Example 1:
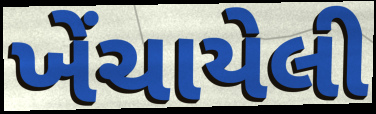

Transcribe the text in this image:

ખેંચાયેલી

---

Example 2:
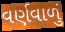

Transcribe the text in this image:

વર્ણવાળું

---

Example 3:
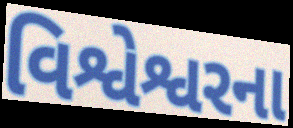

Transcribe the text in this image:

વિશ્વેશ્વરના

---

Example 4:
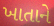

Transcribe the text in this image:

ખાતાને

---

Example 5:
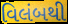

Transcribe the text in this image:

વિલંબથી